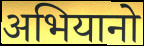
अभियानो